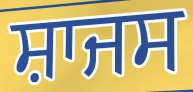
ਸ਼ਾਜਸ